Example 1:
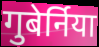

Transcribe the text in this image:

गुबेर्निया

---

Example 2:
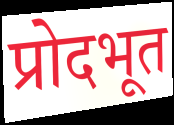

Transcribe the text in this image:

प्रोदभूत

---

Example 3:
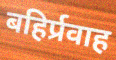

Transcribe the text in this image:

बहिर्प्रवाह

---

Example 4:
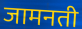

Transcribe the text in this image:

जामनती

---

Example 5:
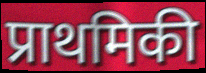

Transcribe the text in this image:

प्राथमिकी